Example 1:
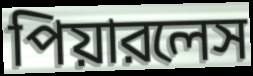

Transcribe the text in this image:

পিয়ারলেস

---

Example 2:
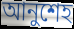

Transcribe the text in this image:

আনুশেহ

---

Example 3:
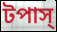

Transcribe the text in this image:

টপাস্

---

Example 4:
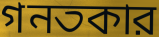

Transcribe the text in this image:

গনতকার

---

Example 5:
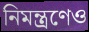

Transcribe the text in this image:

নিমন্ত্রণেও